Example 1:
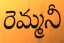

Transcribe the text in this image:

రెమ్మనీ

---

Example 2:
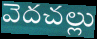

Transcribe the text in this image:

వెదచల్లు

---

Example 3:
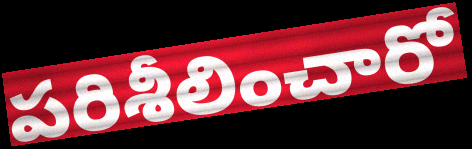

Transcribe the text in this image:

పరిశీలించారో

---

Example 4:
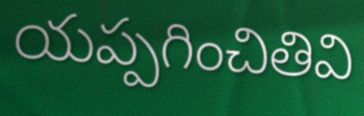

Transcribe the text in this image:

యప్పగించితివి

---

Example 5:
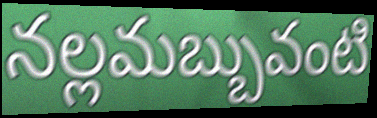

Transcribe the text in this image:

నల్లమబ్బువంటి